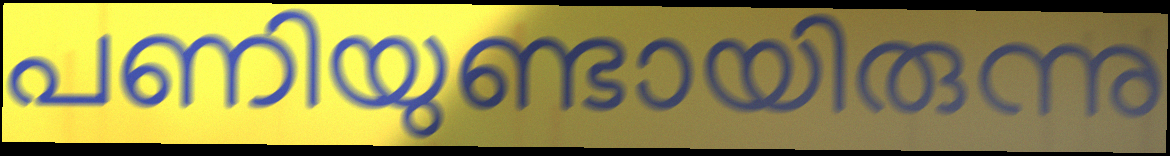
പണിയുണ്ടായിരുന്നു